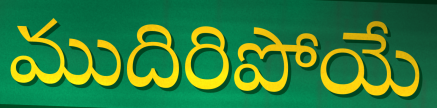
ముదిరిపోయే